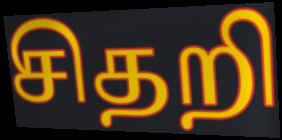
சிதறி